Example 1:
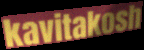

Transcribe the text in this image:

kavitakosh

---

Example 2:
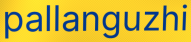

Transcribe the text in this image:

pallanguzhi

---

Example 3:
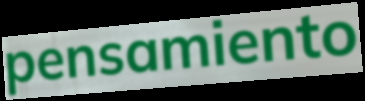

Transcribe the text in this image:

pensamiento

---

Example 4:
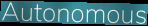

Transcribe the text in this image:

Autonomous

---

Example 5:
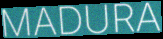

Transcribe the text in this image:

MADURA